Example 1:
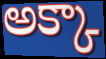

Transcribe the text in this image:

అక్కా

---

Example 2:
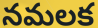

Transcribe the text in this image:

నమలక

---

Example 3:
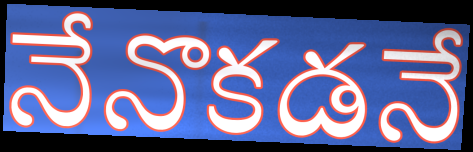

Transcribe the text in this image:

నేనొకడనే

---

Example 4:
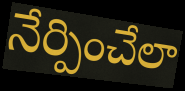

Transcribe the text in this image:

నేర్పించేలా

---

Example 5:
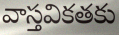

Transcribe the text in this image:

వాస్తవికతకు